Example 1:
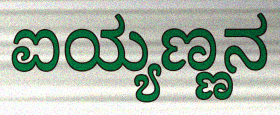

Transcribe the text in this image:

ಐಯ್ಯಣ್ಣನ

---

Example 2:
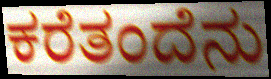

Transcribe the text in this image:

ಕರೆತಂದೆನು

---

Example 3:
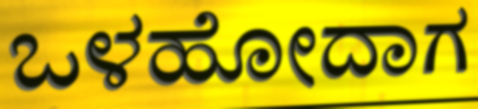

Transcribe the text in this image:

ಒಳಹೋದಾಗ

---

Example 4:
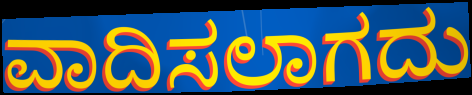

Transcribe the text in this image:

ವಾದಿಸಲಾಗದು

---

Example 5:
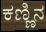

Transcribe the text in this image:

ಕಣ್ಣಿನ